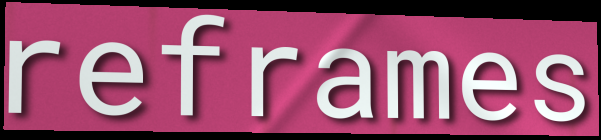
reframes